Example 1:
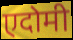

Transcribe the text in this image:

एदोमी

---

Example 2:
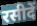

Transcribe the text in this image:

रसीदें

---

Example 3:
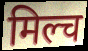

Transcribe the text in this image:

मिल्च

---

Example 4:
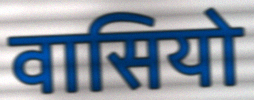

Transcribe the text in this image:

वासियो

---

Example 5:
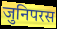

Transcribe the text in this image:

जुनिपरस